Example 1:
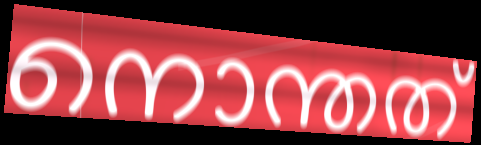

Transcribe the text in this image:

നൊന്തത്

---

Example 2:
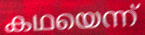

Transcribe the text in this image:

കഥയെന്ന്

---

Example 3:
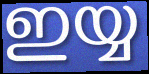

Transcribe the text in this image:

ഇയ്യ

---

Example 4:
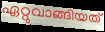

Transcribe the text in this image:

ഏറ്റുവാങ്ങിയത്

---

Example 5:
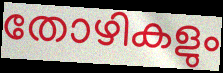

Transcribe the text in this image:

തോഴികളും